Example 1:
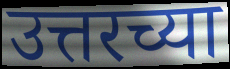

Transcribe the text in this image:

उत्तरच्या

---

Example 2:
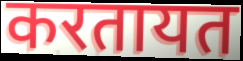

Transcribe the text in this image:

करतायत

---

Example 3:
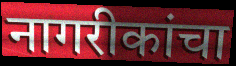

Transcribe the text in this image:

नागरीकांचा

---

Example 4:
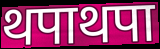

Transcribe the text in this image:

थपाथपा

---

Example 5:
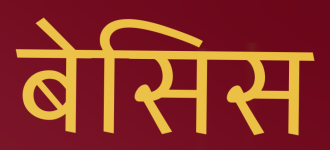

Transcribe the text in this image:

बेसिस